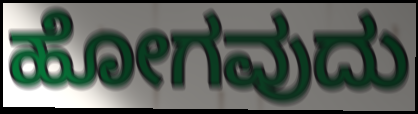
ಹೋಗವುದು